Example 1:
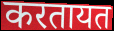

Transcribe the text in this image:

करतायत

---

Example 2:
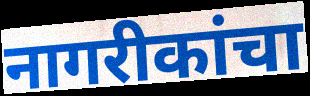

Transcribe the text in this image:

नागरीकांचा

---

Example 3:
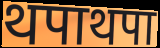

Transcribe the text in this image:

थपाथपा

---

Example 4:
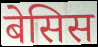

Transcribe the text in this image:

बेसिस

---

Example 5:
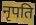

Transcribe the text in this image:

नृपति